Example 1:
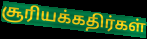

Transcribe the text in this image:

சூரியக்கதிர்கள்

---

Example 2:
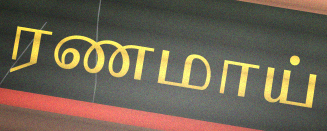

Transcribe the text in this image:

ரணமாய்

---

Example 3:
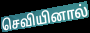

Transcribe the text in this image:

செவியினால்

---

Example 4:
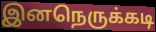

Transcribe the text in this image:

இனநெருக்கடி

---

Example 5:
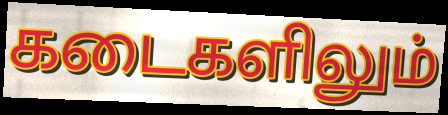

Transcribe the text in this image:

கடைகளிலும்